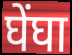
घेंघा